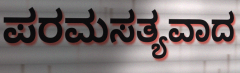
ಪರಮಸತ್ಯವಾದ